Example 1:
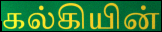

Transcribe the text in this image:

கல்கியின்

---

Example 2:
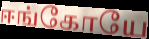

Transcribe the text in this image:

ஈங்கோயே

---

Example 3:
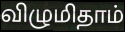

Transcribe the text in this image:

விழுமிதாம்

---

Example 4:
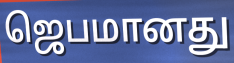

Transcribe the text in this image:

ஜெபமானது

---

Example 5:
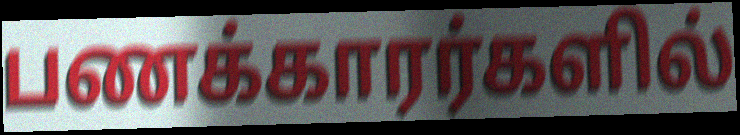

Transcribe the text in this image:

பணக்காரர்களில்